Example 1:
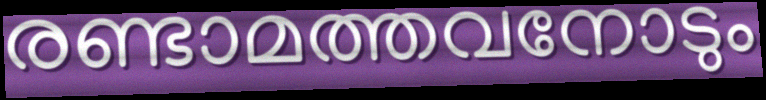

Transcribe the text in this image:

രണ്ടാമത്തവനോടും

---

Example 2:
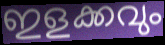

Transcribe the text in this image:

ഇളക്കവും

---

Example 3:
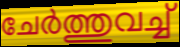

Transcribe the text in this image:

ചേർത്തുവച്ച്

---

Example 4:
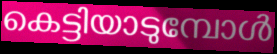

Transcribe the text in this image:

കെട്ടിയാടുമ്പോൾ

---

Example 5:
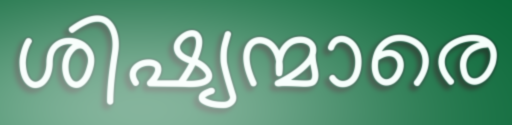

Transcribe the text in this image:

ശിഷ്യന്മാരെ